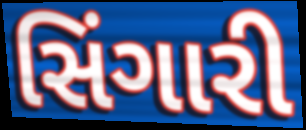
સિંગારી